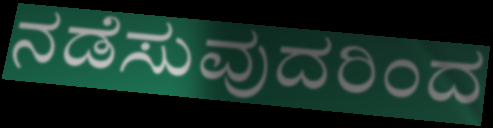
ನಡೆಸುವುದರಿಂದ